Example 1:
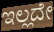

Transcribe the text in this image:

ಇಲ್ಲದೇ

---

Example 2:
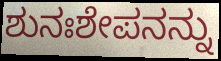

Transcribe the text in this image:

ಶುನಃಶೇಪನನ್ನು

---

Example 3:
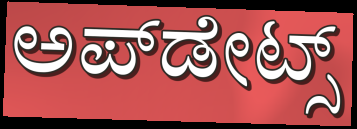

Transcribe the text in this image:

ಅಪ್‌ಡೇಟ್ಸ್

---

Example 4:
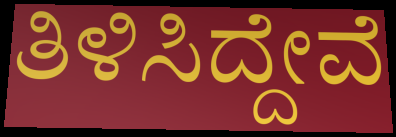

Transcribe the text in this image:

ತಿಳಿಸಿದ್ದೇವೆ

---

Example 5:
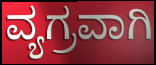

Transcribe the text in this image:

ವ್ಯಗ್ರವಾಗಿ